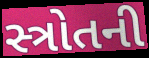
સ્ત્રોતની